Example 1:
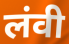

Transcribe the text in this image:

लंवी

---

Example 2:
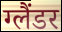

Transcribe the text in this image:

ग्लैंडर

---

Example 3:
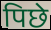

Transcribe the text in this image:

पिछे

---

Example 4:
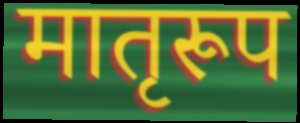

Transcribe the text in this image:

मातृरूप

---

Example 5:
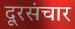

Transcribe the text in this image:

दूरसंचार